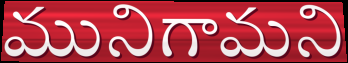
మునిగామని